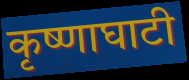
कृष्णाघाटी